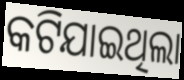
କଟିଯାଇଥିଲା